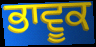
ਭਾਵੂਕ